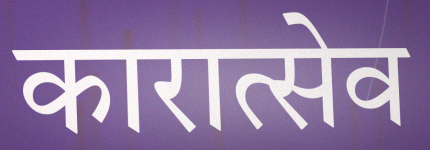
कारात्सेव